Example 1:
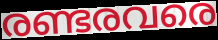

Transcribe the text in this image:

രണ്ടരവരെ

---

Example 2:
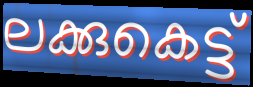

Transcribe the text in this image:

ലക്കുകെട്ട്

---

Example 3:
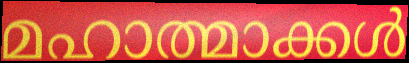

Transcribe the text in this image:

മഹാത്മാക്കൾ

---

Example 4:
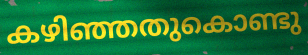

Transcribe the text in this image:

കഴിഞ്ഞതുകൊണ്ടു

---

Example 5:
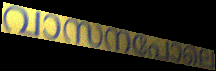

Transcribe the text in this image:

വാസനപോലെ